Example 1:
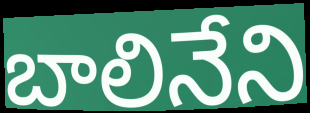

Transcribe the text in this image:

బాలినేని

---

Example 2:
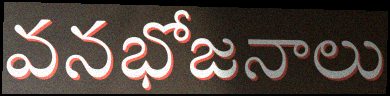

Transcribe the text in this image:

వనభోజనాలు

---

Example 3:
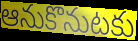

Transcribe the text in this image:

ఆనుకొనుటకు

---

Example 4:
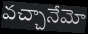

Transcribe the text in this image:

వచ్చానేమో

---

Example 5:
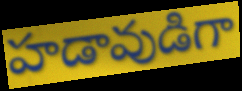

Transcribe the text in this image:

హడావుడిగా